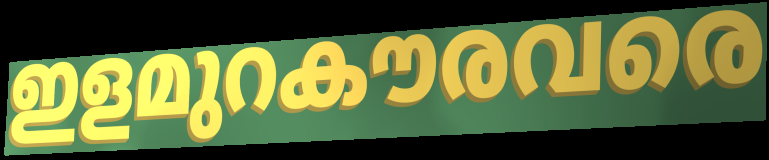
ഇളമുറകൗരവരെ